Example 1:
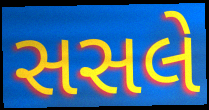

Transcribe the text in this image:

સસલે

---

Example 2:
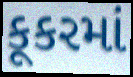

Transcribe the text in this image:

કૂકરમાં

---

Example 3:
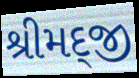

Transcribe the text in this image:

શ્રીમદ્જી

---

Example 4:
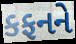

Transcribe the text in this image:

કફનને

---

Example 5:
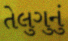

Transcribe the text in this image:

તેલુગુનું